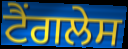
ਟੈਂਗਲੇਸ